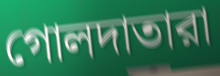
গোলদাতারা